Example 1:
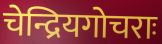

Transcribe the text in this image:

चेन्द्रियगोचराः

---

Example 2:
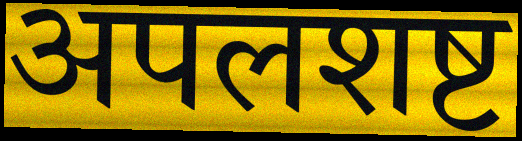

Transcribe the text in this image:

अपलशष्ट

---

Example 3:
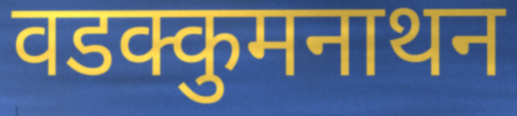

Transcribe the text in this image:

वडक्कुमनाथन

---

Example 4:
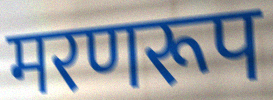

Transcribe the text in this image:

मरणरूप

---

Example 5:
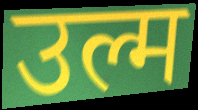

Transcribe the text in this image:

उल्म